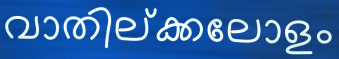
വാതില്ക്കലോളം